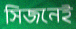
সিজনেই